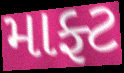
માફ્ટ